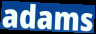
adams